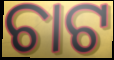
ଚାଟ